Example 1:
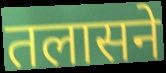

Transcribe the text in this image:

तलासने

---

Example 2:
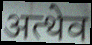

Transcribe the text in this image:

अत्थेव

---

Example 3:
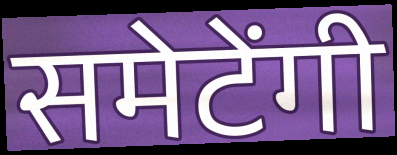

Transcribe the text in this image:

समेटेंगी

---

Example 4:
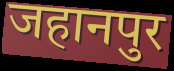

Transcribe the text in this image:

जहानपुर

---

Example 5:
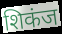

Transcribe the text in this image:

शिकंज